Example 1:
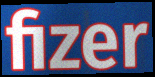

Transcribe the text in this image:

fizer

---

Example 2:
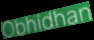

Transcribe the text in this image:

Obhidhan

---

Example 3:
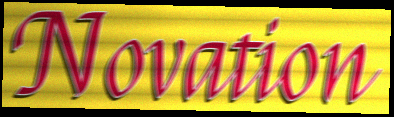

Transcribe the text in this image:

Novation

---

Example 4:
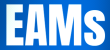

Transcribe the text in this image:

EAMs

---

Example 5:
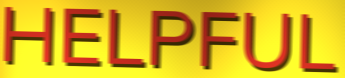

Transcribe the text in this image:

HELPFUL